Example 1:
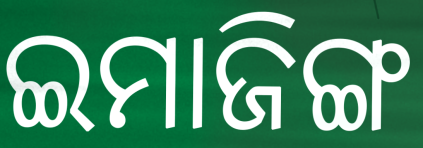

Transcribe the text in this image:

ଇମାଜିଙ୍ଗ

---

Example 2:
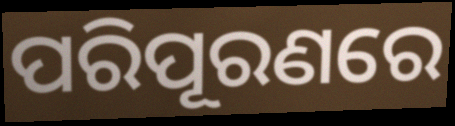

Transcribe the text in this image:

ପରିପୂରଣରେ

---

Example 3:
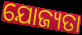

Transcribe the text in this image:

ଯୋଜ୍ୟତା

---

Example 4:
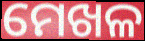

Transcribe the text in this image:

ମେଖଳ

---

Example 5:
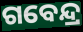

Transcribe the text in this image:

ଗବେନ୍ଦ୍ର